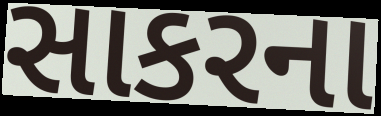
સાકરના